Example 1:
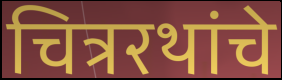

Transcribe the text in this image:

चित्ररथांचे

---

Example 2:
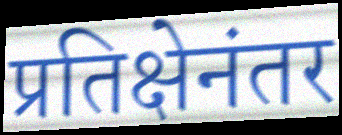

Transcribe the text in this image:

प्रतिक्षेनंतर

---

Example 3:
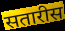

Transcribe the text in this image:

सतारीस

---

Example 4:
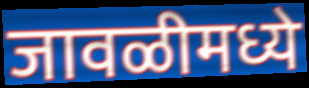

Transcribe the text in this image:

जावळीमध्ये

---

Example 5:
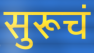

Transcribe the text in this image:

सुरूचं